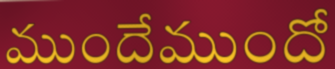
ముందేముందో